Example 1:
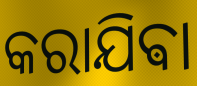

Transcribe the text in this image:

କରାଯିଵା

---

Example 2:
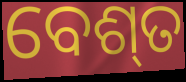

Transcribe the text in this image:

ବେଶ୍‍ତ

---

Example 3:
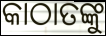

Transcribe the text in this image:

କାଠାତଙ୍କୁ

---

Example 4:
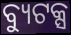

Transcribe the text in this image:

ବ୍ୟୁଟକ୍ସ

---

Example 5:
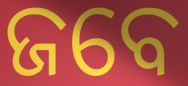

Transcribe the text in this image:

ଜବେ